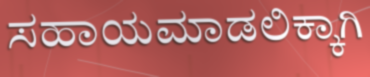
ಸಹಾಯಮಾಡಲಿಕ್ಕಾಗಿ